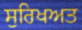
ਸੁਰਿਖਅਤ